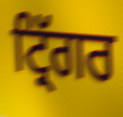
ਟ੍ਰਿੱਗਰ